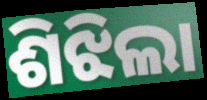
ଶିଝିଲା